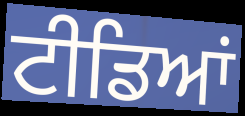
ਟੀਡਿਆਂ